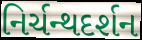
નિર્ચન્થદર્શન